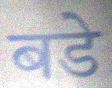
बडे